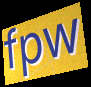
fpw